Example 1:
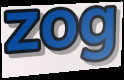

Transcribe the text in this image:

zog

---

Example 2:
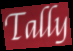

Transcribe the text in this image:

Tally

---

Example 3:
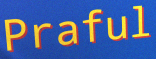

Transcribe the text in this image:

Praful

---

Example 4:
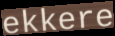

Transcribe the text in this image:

ekkere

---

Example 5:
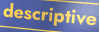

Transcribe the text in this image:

descriptive